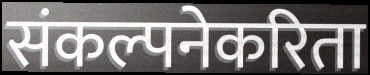
संकल्पनेकरिता